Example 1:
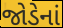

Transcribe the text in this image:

જોડેનાં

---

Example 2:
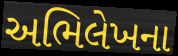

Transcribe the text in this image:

અભિલેખના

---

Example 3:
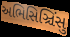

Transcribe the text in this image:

અભિસિઞ્ચિંસુ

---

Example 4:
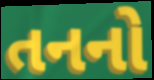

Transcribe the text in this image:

તનનો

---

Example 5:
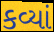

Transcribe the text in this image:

કવ્યાં